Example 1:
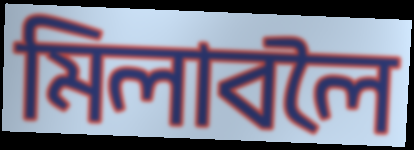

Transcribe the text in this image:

মিলাবলৈ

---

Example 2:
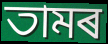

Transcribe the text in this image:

তামৰ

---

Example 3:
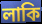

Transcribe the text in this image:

লাকি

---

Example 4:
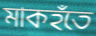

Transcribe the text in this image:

মাকহঁতে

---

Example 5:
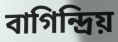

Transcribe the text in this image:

বাগিন্দ্ৰিয়